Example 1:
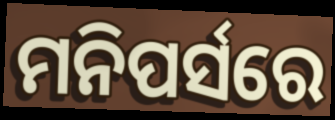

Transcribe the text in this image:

ମନିପର୍ସରେ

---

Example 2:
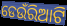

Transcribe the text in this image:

ଡେଉଁରିଆଟି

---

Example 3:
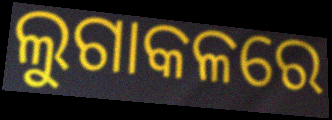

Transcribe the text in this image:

ଲୁଗାକଳରେ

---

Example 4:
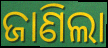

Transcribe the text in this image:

ଜାଣିଲା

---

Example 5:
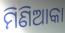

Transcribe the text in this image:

ମିଣିଆକା